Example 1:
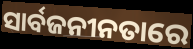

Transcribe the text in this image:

ସାର୍ବଜନୀନତାରେ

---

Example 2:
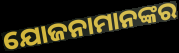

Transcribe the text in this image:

ଯୋଜନାମାନଙ୍କର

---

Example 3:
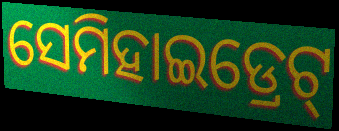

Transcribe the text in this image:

ସେମିହାଇଡ୍ରେଟ୍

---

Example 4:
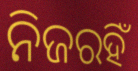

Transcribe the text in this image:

ନିଜରହିଁ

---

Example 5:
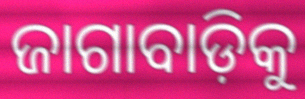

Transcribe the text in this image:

ଜାଗାବାଡ଼ିକୁ